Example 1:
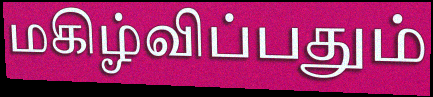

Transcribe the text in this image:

மகிழ்விப்பதும்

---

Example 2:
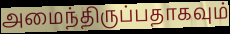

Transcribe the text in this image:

அமைந்திருப்பதாகவும்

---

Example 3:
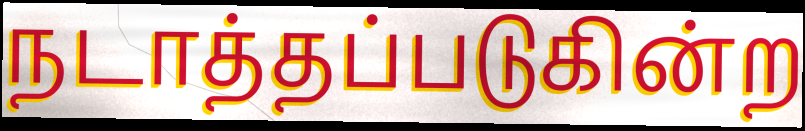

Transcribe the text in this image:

நடாத்தப்படுகின்ற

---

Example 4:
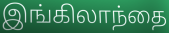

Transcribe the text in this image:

இங்கிலாந்தை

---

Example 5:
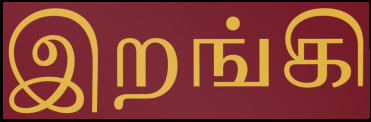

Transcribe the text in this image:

இறங்கி